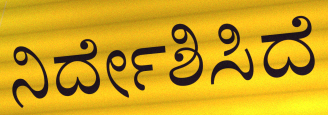
ನಿರ್ದೇಶಿಸಿದೆ